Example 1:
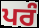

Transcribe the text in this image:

ਪਰੰ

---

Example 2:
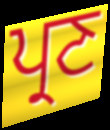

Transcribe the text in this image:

ਪ੍ਰਣ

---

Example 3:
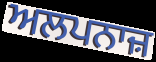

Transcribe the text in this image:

ਅਲਪਨਾਜ਼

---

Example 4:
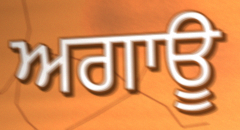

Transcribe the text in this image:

ਅਗਾਊ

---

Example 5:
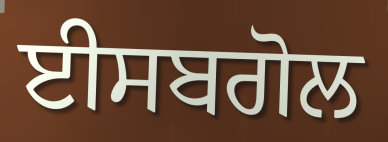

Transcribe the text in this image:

ਈਸਬਗੋਲ